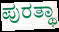
ಪುರತ್ಥಾ